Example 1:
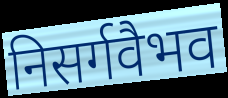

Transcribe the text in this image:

निसर्गवैभव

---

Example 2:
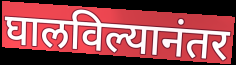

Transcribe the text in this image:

घालविल्यानंतर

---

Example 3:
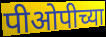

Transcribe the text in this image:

पीओपीच्या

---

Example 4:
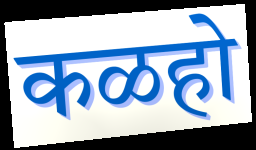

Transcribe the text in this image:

कळहो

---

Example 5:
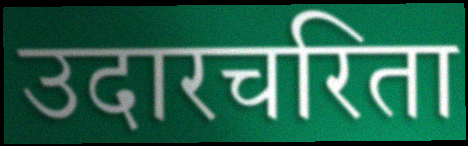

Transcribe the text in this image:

उदारचरिता